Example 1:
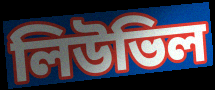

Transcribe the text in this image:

লিউভিল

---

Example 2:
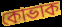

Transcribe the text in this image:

কোভাক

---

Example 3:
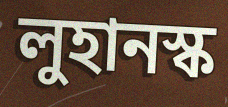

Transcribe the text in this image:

লুহানস্ক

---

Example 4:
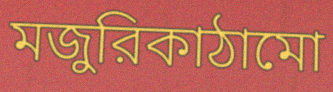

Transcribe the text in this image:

মজুরিকাঠামো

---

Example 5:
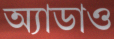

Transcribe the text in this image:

অ্যাডাও